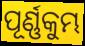
ପୂର୍ଣ୍ଣକୁମ୍ଭ